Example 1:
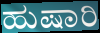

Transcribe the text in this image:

ಹುಷಾರಿ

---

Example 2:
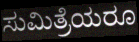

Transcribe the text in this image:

ಸುಮಿತ್ರೆಯರೂ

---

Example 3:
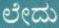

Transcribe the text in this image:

ಲೇದು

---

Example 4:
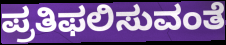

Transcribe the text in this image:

ಪ್ರತಿಫಲಿಸುವಂತೆ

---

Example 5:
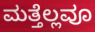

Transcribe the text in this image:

ಮತ್ತೆಲ್ಲವೂ